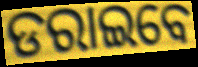
ଡରାଇବେ